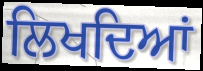
ਲਿਖਦਿਆਂ